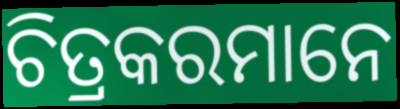
ଚିତ୍ରକରମାନେ